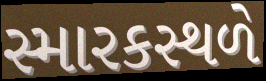
સ્મારકસ્થળે